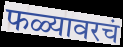
फळ्यावरचं